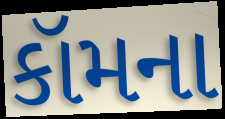
કૉમના